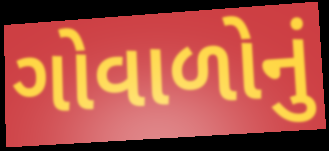
ગોવાળોનું